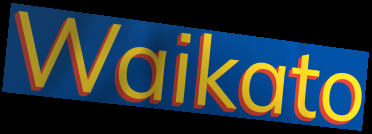
Waikato